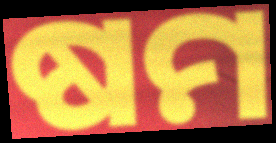
ଷମ